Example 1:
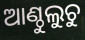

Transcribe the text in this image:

ଆଣ୍ଠୁଲୁଚୁ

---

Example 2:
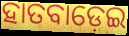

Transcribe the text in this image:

ହାତବାଡ଼େଇ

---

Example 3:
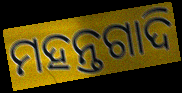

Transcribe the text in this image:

ମହନ୍ତଗାଦି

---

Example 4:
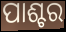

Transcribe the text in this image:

ପାଶ୍ଚର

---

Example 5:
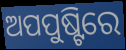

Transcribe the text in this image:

ଅପପୁଷ୍ଟିରେ